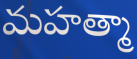
మహత్మా